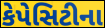
કેપેસિટીના